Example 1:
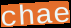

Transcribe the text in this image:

chae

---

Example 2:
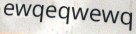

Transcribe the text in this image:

ewqeqwewq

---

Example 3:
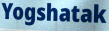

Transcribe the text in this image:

Yogshatak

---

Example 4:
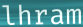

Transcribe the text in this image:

lhram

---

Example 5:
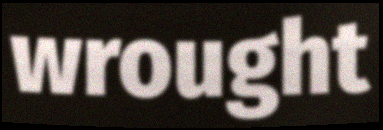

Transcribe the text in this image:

wrought